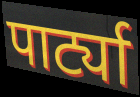
पार्ट्या